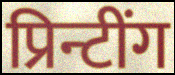
प्रिन्टींग